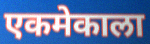
एकमेकाला